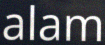
alam